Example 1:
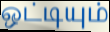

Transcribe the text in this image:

ஒட்டியும்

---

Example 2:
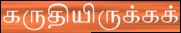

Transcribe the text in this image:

கருதியிருக்கக்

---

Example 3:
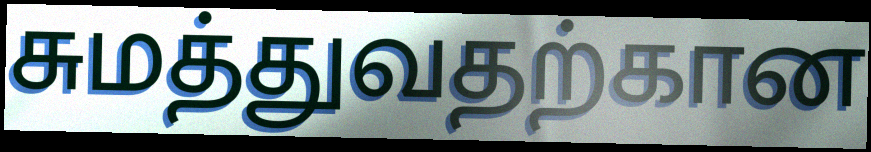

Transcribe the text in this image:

சுமத்துவதற்கான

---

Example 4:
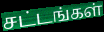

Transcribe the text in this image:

சட்டங்கள்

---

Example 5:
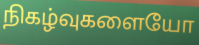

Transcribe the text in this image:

நிகழ்வுகளையோ